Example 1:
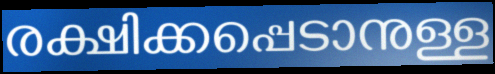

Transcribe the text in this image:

രക്ഷിക്കപ്പെടാനുള്ള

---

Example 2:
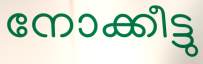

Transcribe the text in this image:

നോക്കീട്ടു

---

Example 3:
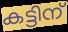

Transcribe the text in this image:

കട്ടിന്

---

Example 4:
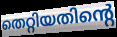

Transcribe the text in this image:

തെറ്റിയതിന്റെ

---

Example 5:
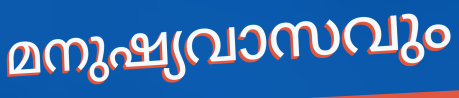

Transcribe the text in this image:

മനുഷ്യവാസവും